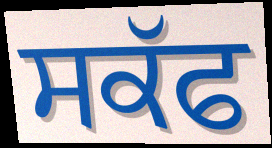
ਸਕੱਫ